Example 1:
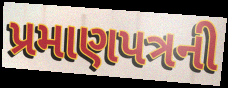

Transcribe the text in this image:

પ્રમાણપત્રની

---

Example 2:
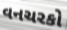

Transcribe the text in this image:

વનચરકો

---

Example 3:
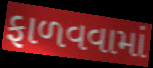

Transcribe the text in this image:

ફાળવવામાં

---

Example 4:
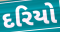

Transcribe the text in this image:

દરિયો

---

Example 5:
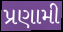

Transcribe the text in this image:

પ્રણામી